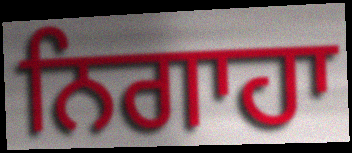
ਨਿਗਾਹਾ